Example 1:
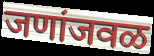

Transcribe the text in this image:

जणांजवळ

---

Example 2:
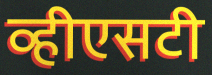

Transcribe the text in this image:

व्हीएसटी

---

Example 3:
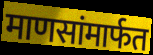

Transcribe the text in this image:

माणसांमार्फत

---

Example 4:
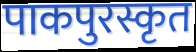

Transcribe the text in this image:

पाकपुरस्कृत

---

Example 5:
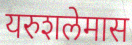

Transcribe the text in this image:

यरुशलेमास